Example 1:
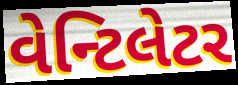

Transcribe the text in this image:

વેન્ટિલેટર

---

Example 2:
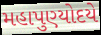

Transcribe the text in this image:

મહાપુણ્યોદયે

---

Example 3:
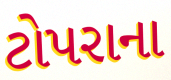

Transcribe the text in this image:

ટોપરાના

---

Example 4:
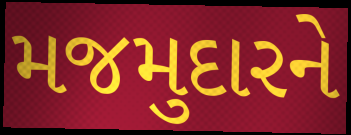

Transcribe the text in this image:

મજમુદારને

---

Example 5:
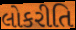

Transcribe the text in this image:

લોકરીતિ